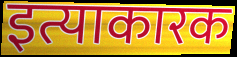
इत्याकारक